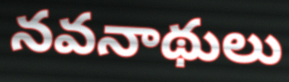
నవనాథులు